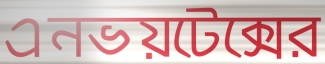
এনভয়টেক্সের